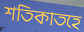
শতিকাতহে